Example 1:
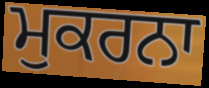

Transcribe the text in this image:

ਮੁਕਰਨਾ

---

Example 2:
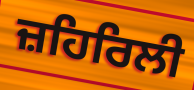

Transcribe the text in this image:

ਜ਼ਹਿਰਿਲੀ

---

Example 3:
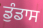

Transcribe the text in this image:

ਡੁੰਡਾਸ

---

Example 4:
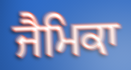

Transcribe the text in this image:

ਜੈਮਿਕਾ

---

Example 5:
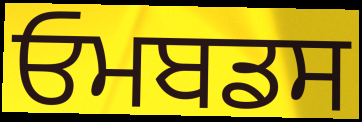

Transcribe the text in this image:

ਓਮਬਡਸ